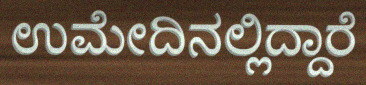
ಉಮೇದಿನಲ್ಲಿದ್ದಾರೆ